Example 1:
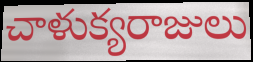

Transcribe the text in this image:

చాళుక్యరాజులు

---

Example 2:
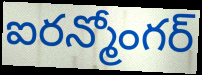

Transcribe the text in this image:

ఐరన్మోంగర్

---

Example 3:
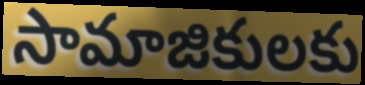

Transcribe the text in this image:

సామాజికులకు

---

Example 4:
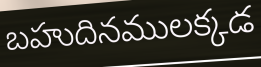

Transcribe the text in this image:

బహుదినములక్కడ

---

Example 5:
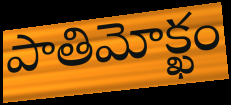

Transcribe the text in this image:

పాతిమోక్ఖం